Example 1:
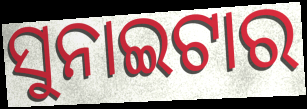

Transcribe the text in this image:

ସୁନାଇଟାର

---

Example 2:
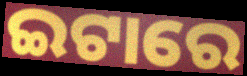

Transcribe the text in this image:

ଇଟାରେ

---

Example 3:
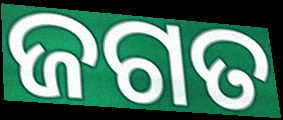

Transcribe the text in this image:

ଜଗତ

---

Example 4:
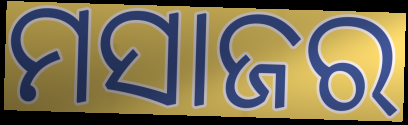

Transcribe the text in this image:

ମସାଜର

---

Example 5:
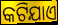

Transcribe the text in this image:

କଟିଯାଏ